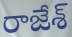
రాజేశ్